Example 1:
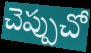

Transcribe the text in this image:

చెప్పుచో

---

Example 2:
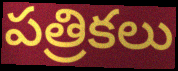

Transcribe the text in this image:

పత్రికలు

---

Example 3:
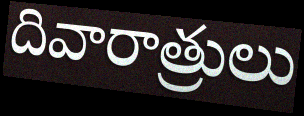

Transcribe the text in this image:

దివారాత్రులు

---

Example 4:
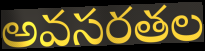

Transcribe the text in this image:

అవసరతల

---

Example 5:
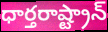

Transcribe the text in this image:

ధార్తరాష్ట్రాన్